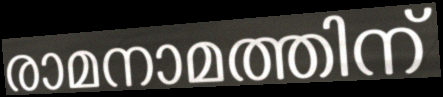
രാമനാമത്തിന്